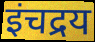
इंचद्रय